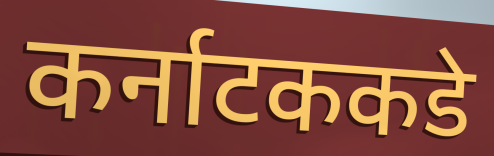
कर्नाटककडे